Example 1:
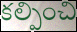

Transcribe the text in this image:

కల్పించి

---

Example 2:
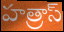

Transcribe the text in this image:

హత్రాస్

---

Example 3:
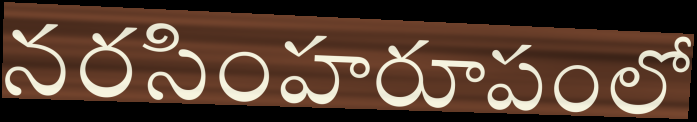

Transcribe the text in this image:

నరసింహరూపంలో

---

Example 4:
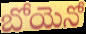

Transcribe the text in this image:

బోయెనో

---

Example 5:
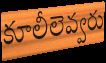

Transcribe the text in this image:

కూలీలెవ్వరు